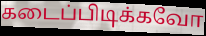
கடைப்பிடிக்கவோ